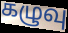
கழுவு